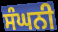
ਸੰਘਨੀ